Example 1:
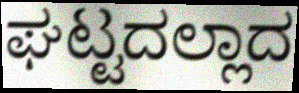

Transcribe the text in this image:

ಘಟ್ಟದಲ್ಲಾದ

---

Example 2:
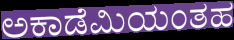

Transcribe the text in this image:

ಅಕಾಡೆಮಿಯಂತಹ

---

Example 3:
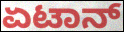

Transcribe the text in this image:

ಏಟಾನ್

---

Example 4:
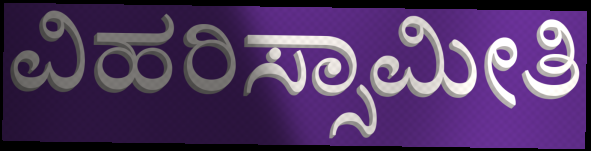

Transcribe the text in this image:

ವಿಹರಿಸ್ಸಾಮೀತಿ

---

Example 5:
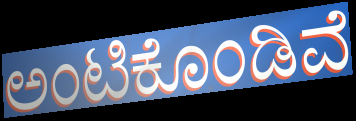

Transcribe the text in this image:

ಅಂಟಿಕೊಂಡಿವೆ